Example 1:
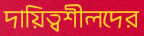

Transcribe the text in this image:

দায়িত্বশীলদের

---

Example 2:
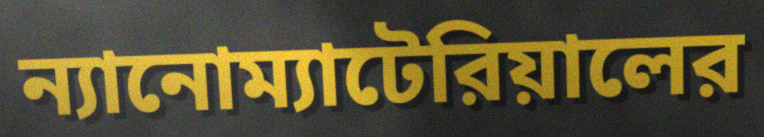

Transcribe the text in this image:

ন্যানোম্যাটেরিয়ালের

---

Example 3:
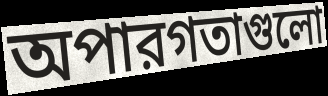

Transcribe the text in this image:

অপারগতাগুলো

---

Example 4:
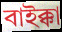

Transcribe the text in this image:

বাইক্কা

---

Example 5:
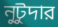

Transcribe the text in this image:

নুটুদার